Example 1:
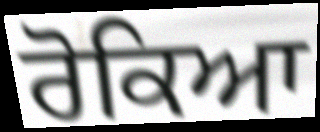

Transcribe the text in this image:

ਰੋਕਿਆ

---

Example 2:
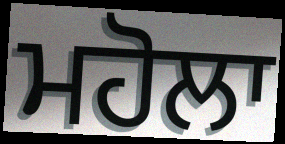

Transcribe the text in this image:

ਮਹੋਲਾ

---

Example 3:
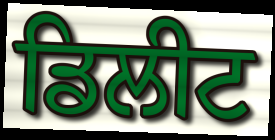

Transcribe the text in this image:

ਡਿਲੀਟ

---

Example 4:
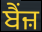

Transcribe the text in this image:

ਬੈਂਜ਼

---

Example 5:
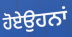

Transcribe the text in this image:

ਹੋਏਉਹਨਾਂ